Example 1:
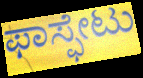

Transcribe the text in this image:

ಫಾಸ್ಫೇಟು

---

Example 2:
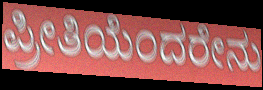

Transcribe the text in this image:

ಪ್ರೀತಿಯೆಂದರೇನು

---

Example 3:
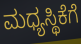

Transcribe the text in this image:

ಮಧ್ಯಸ್ಥಿಕೆಗೆ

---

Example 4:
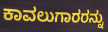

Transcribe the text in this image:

ಕಾವಲುಗಾರರನ್ನು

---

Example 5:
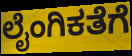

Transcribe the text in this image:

ಲೈಂಗಿಕತೆಗೆ